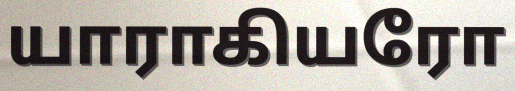
யாராகியரோ